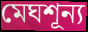
মেঘশূন্য